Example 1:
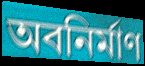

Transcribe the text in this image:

অবনির্মাণ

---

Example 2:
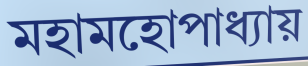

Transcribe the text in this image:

মহামহোপাধ্যায়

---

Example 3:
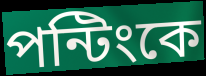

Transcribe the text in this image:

পন্টিংকে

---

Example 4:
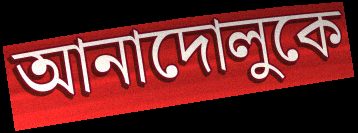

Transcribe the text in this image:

আনাদোলুকে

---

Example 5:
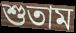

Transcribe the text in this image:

শুতাম